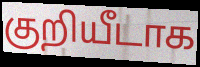
குறியீடாக